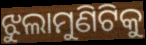
ଝୁଲାମୁଣିଟିକୁ